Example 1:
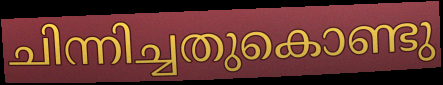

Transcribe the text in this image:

ചിന്നിച്ചതുകൊണ്ടു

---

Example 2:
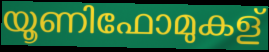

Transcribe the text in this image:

യൂണിഫോമുകള്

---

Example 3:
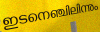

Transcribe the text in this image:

ഇടനെഞ്ചിലിന്നും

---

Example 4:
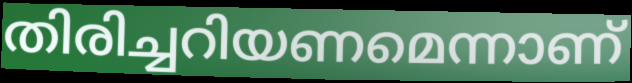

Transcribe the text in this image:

തിരിച്ചറിയണമെന്നാണ്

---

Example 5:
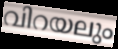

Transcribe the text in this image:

വിറയലും